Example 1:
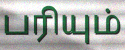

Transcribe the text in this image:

பரியும்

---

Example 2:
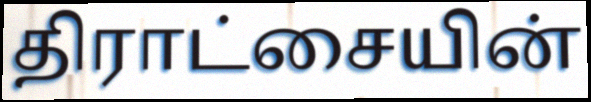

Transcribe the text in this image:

திராட்சையின்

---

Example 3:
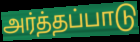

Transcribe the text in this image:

அர்த்தப்பாடு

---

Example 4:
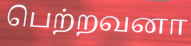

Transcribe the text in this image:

பெற்றவனா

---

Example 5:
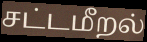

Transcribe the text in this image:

சட்டமீறல்